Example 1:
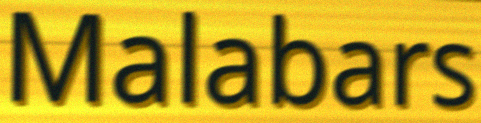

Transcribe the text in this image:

Malabars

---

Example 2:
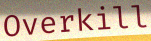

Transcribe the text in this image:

Overkill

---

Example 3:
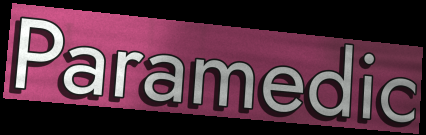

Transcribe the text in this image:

Paramedic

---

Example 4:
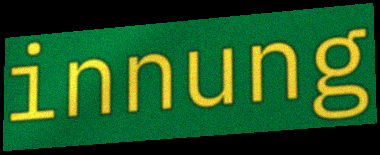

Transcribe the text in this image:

innung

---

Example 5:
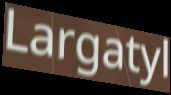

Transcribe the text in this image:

Largatyl